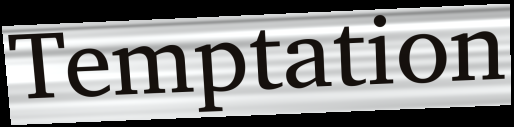
Temptation